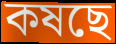
কষছে